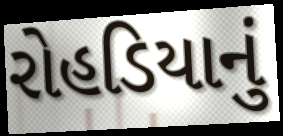
રોહડિયાનું